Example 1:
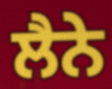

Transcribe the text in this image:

ਲੈਨੇ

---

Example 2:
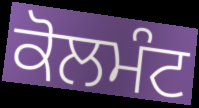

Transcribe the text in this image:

ਕੋਲਮੰਟ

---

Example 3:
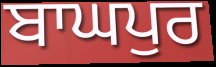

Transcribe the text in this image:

ਬਾਘਪੁਰ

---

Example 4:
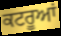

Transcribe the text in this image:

ਕਟਰੂਆਂ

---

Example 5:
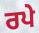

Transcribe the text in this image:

ਰਪੇ